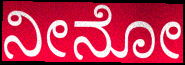
ನೀನೋ